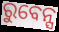
ରୁବେନ୍ସ